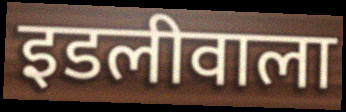
इडलीवाला